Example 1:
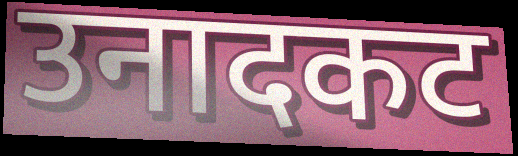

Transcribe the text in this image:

उनादकट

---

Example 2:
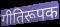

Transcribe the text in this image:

गीतिरूपक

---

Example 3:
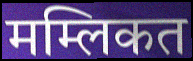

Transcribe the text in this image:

मम्लिकत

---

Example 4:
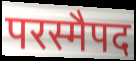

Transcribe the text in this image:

परस्मैपद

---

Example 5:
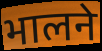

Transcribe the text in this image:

भालने